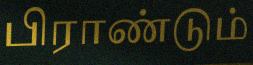
பிராண்டும்